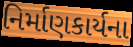
નિર્માણકાર્યના